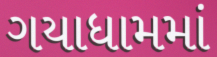
ગયાધામમાં